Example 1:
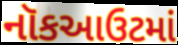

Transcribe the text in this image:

નૉકઆઉટમાં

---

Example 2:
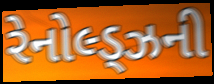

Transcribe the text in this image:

રેનોલ્ડ્ઝની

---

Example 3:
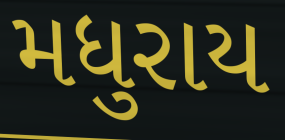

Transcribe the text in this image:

મધુરાય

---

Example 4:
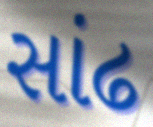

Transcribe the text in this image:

સાંઢ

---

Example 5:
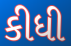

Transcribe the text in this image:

કીધી